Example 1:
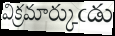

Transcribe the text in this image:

విక్రమార్కుఁడు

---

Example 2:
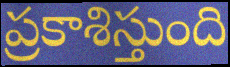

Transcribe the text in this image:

ప్రకాశిస్తుంది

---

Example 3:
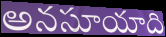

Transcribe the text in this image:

అనసూయాది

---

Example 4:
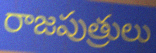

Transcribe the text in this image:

రాజపుత్రులు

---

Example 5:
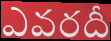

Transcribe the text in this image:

ఎవరదీ